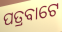
ପତ୍ରବାଟେ